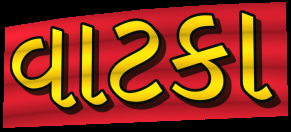
વાટકા